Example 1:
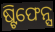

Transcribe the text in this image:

ଷ୍ଟିଫେନ୍ସ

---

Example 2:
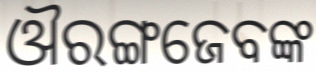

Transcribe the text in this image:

ଔରଙ୍ଗଜେବଙ୍କ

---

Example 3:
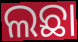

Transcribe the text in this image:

ଲଛା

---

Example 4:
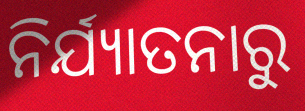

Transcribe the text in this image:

ନିର୍ଯ୍ୟାତନାରୁ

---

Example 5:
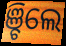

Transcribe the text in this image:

ଞ୍ଚିଲେ